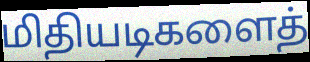
மிதியடிகளைத்